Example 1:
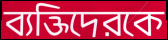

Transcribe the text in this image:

ব্যক্তিদেরকে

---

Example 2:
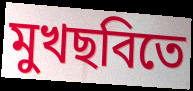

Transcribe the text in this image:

মুখছবিতে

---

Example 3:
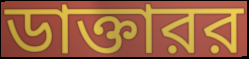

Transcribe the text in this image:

ডাক্তারর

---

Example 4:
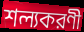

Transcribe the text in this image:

শল্যকরণী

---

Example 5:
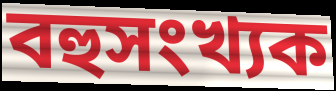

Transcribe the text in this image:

বহুসংখ্যক